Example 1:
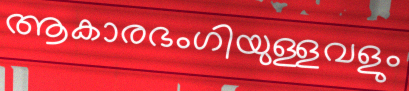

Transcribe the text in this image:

ആകാരഭംഗിയുള്ളവളും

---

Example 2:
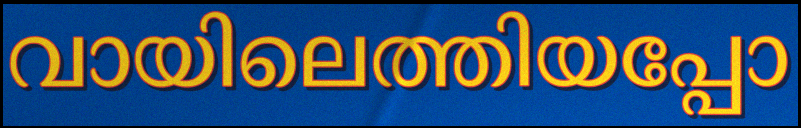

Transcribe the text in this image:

വായിലെത്തിയപ്പോ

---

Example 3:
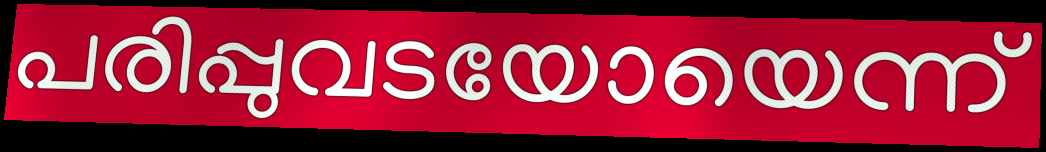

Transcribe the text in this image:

പരിപ്പുവടയോയെന്ന്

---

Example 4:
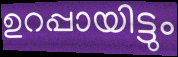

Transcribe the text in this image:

ഉറപ്പായിട്ടും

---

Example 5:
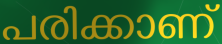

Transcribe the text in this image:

പരിക്കാണ്